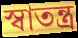
স্বাতন্ত্র